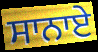
ਸਾਨਾਏ